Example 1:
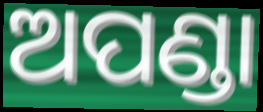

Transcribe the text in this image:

ଅପଣ୍ଡା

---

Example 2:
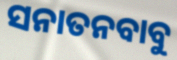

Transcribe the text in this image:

ସନାତନବାବୁ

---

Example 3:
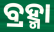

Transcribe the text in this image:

ବ୍ରହ୍ମା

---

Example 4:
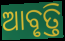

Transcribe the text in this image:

ଆବୃତ୍ତି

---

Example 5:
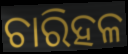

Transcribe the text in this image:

ଚାରିହଳ